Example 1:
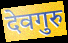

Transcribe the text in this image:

देवगुरु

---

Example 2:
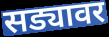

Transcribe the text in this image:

सड्यावर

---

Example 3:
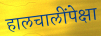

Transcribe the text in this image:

हालचालींपेक्षा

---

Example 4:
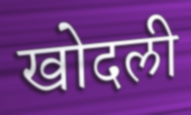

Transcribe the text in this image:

खोदली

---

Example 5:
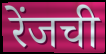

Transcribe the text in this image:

रेंजची